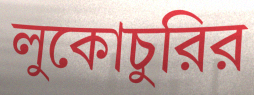
লুকোচুরির